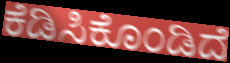
ಕೆಡಿಸಿಕೊಂಡಿದೆ